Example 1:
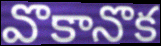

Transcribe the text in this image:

వొకానొక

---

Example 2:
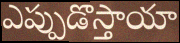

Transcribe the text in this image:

ఎప్పుడొస్తాయా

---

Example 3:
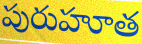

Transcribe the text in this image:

పురుహూత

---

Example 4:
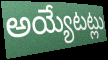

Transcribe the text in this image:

అయ్యేటట్లు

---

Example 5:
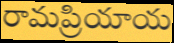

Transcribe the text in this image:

రామప్రియాయ